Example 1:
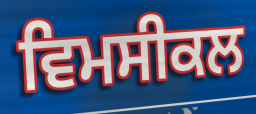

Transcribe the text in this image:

ਵਿਮਸੀਕਲ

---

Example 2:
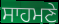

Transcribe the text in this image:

ਸਾਹਮਣੇ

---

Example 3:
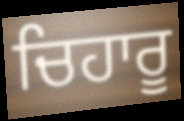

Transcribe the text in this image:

ਚਿਹਾਰੂ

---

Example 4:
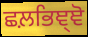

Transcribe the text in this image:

ਛਲ਼ਭਿਞ੍ਞੋ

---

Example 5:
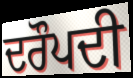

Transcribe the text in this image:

ਦਰੌਪਦੀ